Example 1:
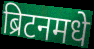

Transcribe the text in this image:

ब्रिटनमधे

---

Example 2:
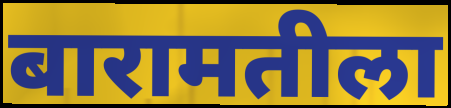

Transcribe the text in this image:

बारामतीला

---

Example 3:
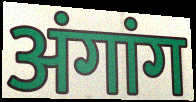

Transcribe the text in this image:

अंगांग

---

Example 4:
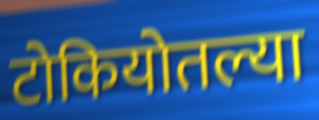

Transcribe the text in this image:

टोकियोतल्या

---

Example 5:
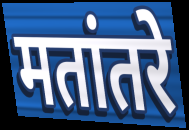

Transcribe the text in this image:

मतांतरे